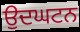
ਉਦਘਟਨ